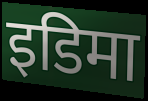
इडिमा